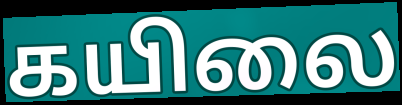
கயிலை